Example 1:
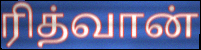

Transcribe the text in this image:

ரித்வான்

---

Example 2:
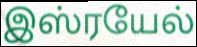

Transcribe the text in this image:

இஸ்ரயேல்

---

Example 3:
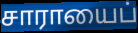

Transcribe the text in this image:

சாராயைப்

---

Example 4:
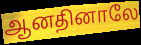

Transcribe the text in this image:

ஆனதினாலே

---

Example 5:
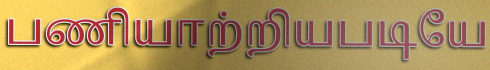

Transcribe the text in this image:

பணியாற்றியபடியே